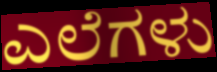
ಎಲೆಗಳು